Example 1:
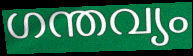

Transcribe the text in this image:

ഗന്തവ്യം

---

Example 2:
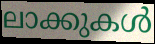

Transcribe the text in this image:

ലാക്കുകൾ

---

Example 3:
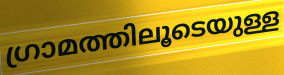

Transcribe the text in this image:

ഗ്രാമത്തിലൂടെയുള്ള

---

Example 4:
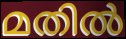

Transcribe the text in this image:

മതിൽ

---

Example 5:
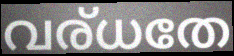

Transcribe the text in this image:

വര്ധതേ